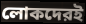
লোকদেরই